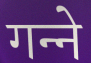
गन्‍ने